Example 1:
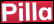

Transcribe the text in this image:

Pilla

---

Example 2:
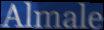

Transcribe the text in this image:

Almale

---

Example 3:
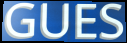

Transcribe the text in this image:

GUES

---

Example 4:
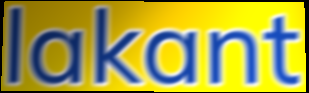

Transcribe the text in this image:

lakant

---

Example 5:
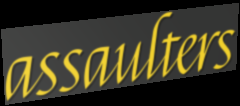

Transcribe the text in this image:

assaulters